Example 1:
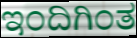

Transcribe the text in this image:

ಇಂದಿಗಿಂತ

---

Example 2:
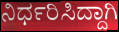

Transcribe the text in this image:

ನಿರ್ಧರಿಸಿದ್ದಾಗಿ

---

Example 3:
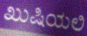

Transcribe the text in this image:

ಖುಷಿಯಲಿ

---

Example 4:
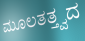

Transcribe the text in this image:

ಮೂಲತತ್ತ್ವದ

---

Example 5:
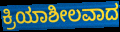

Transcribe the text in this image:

ಕ್ರಿಯಾಶೀಲವಾದ